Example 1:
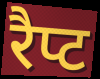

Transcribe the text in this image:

रैप्ट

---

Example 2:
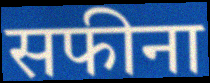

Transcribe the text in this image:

सफीना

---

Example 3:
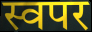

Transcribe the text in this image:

स्वपर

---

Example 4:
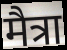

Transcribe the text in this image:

मैत्रा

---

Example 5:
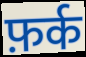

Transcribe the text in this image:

फ़र्क